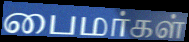
பைமர்கள்